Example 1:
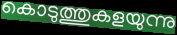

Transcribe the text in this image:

കൊടുത്തുകളയുന്നു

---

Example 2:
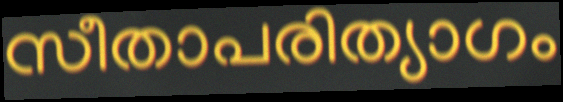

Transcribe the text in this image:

സീതാപരിത്യാഗം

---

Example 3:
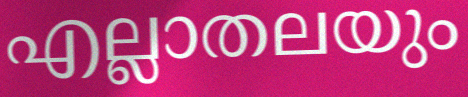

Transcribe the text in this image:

എല്ലാതലയും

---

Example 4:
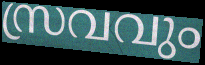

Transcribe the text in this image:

സ്രവവും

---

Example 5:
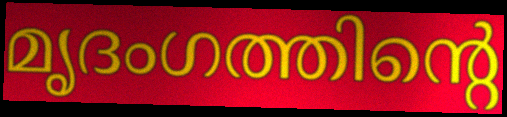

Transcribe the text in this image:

മൃദംഗത്തിന്റെ